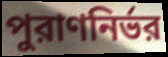
পুরাণনির্ভর